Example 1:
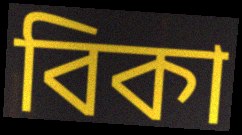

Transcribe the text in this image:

বিকা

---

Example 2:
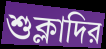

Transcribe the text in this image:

শুক্লাদির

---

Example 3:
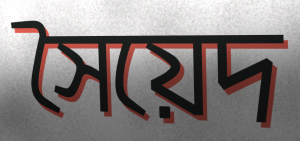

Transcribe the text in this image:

সৈয়েদ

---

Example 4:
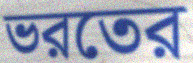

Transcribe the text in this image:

ভরতের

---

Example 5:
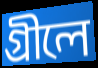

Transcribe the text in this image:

গ্রীলে